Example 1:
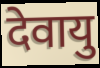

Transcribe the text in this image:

देवायु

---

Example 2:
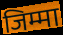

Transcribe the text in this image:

जिम्‍मा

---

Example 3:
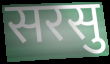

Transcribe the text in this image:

सरसु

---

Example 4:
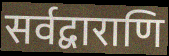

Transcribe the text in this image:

सर्वद्वाराणि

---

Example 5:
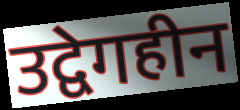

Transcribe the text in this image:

उद्वेगहीन